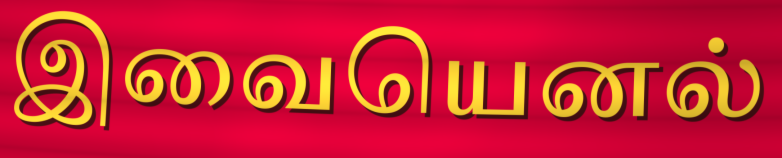
இவையெனல்